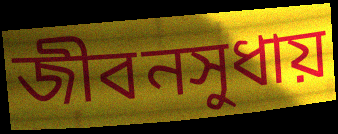
জীবনসুধায়